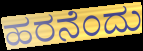
ಹರನೆಂದು